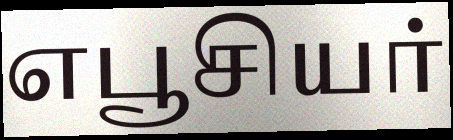
எபூசியர்